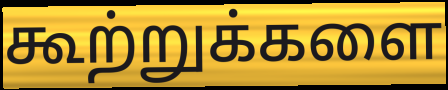
கூற்றுக்களை